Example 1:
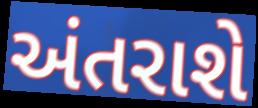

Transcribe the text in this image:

અંતરાશે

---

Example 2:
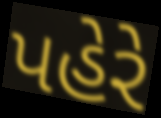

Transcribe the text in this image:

પહેરે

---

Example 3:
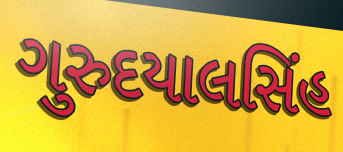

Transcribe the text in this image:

ગુરુદયાલસિંહ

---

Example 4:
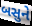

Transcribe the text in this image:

બસુને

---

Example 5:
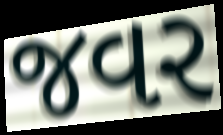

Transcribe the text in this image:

જવર